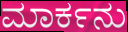
ಮಾರ್ಕನು